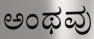
ಅಂಥವು